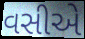
વસીએ